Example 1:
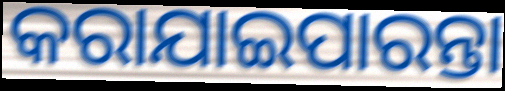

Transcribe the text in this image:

କରାଯାଇପାରନ୍ତା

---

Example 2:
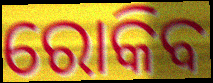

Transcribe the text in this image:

ରୋକିବ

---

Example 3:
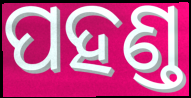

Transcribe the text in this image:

ପହଣ୍ଡ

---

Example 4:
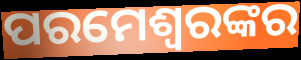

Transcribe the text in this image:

ପରମେଶ୍ୱରଙ୍କର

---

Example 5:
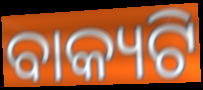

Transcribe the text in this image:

ବାକ୍ୟଟି